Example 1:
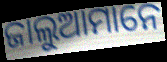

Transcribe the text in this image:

ଜାଲୁଆମାନେ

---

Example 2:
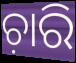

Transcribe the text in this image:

ଚ଼ାରି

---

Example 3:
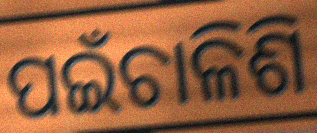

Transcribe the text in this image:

ପଇଁଚାଳିଶି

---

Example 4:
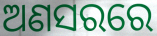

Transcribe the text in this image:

ଅଣସରରେ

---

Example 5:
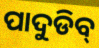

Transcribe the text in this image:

ପାଦୁଡିବ୍